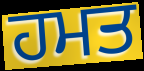
ਹਮਤ